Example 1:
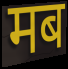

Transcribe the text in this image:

मब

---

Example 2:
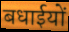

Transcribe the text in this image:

बधाईयों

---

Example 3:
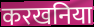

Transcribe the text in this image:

करखनिया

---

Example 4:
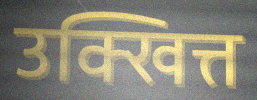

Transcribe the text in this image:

उक्खित्त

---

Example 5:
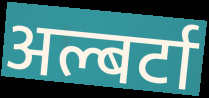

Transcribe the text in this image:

अल्बर्टा